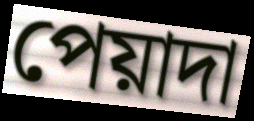
পেয়াদা